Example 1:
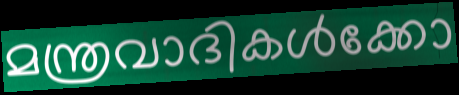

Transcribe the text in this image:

മന്ത്രവാദികൾക്കോ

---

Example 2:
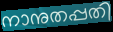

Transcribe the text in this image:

നാനുതപ്പതി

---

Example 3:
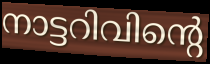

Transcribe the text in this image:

നാട്ടറിവിന്റെ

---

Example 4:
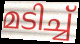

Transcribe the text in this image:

മടിച്ച്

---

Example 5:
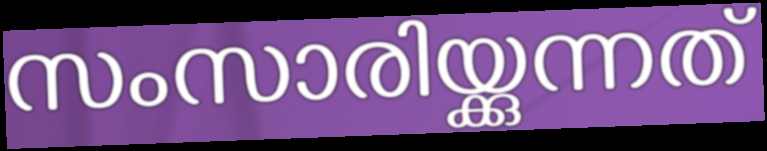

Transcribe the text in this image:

സംസാരിയ്ക്കുന്നത്